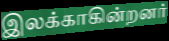
இலக்காகின்றனர்